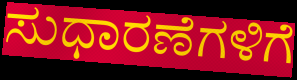
ಸುಧಾರಣೆಗಳಿಗೆ